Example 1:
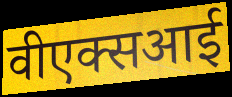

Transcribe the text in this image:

वीएक्सआई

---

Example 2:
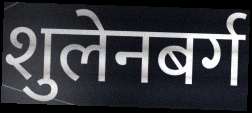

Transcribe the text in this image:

शुलेनबर्ग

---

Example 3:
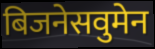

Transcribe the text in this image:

बिजनेसवुमेन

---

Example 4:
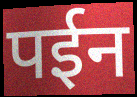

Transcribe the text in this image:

पईन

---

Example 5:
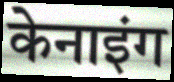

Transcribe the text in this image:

केनाइंग